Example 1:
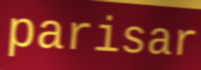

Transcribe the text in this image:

parisar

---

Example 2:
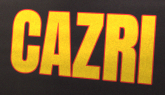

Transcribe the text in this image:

CAZRI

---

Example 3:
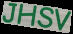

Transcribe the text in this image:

JHSV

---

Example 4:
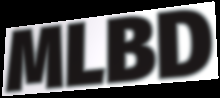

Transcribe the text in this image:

MLBD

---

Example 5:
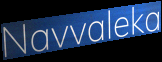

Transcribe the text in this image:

Navvaleka